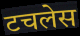
टचलेस